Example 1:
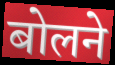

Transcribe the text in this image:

बोलने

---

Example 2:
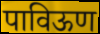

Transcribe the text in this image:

पाविऊण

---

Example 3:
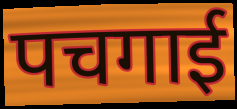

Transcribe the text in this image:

पचगाई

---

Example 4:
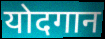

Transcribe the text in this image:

योदगान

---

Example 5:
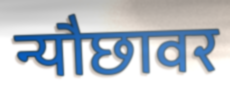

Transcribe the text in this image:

न्यौछावर